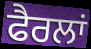
ਫੈਰਲਾਂ